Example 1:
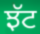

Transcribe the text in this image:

ਝੱਟ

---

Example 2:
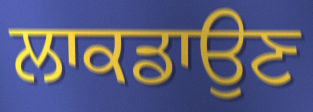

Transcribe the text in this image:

ਲਾਕਡਾਉਣ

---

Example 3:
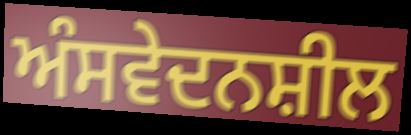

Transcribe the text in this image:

ਅੰਸਵੇਦਨਸ਼ੀਲ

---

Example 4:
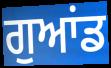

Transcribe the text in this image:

ਗੁਆਂਡ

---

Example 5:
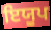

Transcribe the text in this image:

ਇਯੂਪ